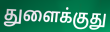
துளைக்குது